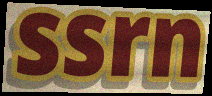
ssrn